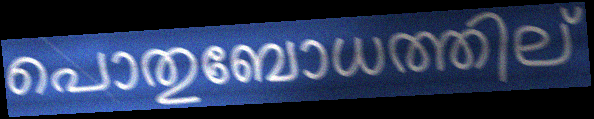
പൊതുബോധത്തില്